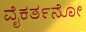
ವೈಕರ್ತನೋ